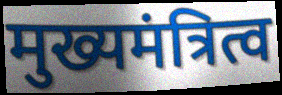
मुख्यमंत्रित्व